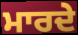
ਮਾਰਦੇ